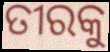
ତୀରକୁ